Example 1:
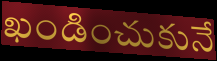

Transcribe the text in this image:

ఖండించుకునే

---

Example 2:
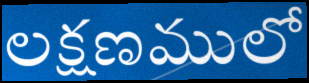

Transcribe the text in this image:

లక్షణములో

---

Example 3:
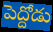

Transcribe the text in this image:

పెద్దోడు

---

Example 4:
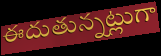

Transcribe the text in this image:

ఈదుతున్నట్లుగా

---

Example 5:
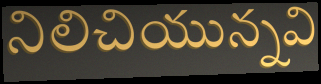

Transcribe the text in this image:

నిలిచియున్నవి